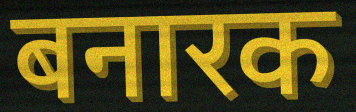
बनारक